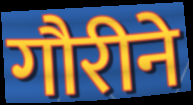
गौरीने